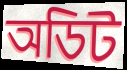
অডিট